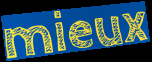
mieux